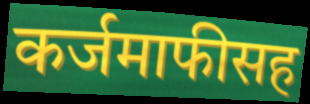
कर्जमाफीसह